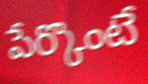
పేర్కొంటే